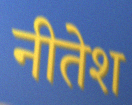
नीतेश